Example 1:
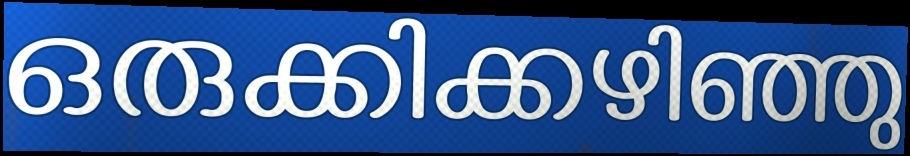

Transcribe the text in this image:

ഒരുക്കിക്കഴിഞ്ഞു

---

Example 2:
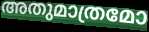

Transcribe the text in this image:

അതുമാത്രമോ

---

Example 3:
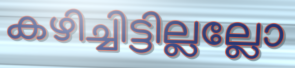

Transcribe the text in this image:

കഴിച്ചിട്ടില്ലല്ലോ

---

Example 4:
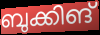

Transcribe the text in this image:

ബുക്കിങ്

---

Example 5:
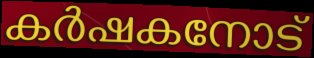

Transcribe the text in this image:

കർഷകനോട്